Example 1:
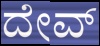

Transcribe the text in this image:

ದೇವ್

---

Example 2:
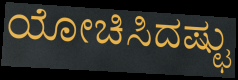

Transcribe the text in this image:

ಯೋಚಿಸಿದಷ್ಟು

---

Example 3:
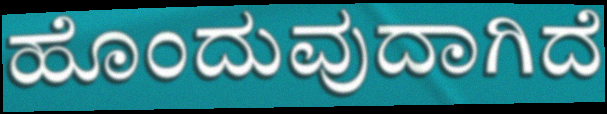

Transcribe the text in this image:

ಹೊಂದುವುದಾಗಿದೆ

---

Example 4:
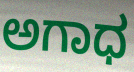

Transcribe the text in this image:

ಅಗಾಧ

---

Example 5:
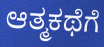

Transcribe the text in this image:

ಆತ್ಮಕಥೆಗೆ